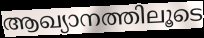
ആഖ്യാനത്തിലൂടെ